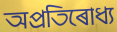
অপ্ৰতিৰোধ্য